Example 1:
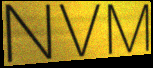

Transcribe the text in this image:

NVM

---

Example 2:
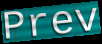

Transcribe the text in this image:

Prev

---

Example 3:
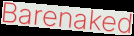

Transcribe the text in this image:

Barenaked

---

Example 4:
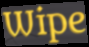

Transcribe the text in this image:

Wipe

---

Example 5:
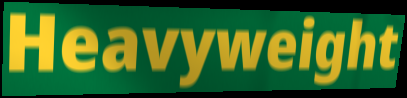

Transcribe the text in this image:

Heavyweight